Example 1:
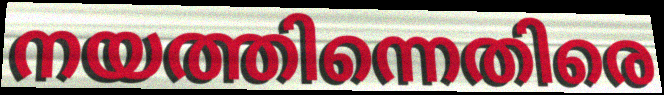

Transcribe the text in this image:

നയത്തിന്നെതിരെ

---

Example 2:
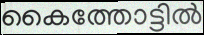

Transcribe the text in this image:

കൈത്തോട്ടിൽ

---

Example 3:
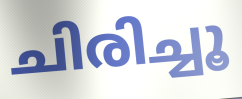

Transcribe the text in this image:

ചിരിച്ചൂ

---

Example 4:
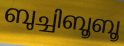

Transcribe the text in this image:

ബുച്ചിബൂബൂ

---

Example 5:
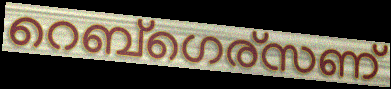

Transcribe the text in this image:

റെബ്ഗെര്സണ്